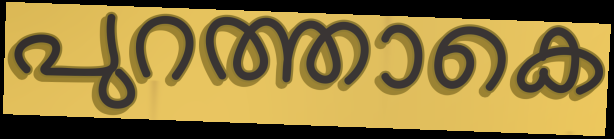
പുറത്താകെ